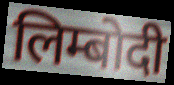
लिम्बोदी